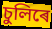
চুলিৰে